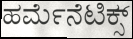
ಹರ್ಮೆನೆಟಿಕ್ಸ್